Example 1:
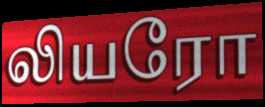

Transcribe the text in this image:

லியரோ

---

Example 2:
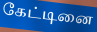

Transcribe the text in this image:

கேட்டினை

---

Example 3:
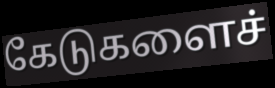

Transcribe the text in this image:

கேடுகளைச்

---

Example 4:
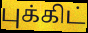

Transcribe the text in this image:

புக்கிட்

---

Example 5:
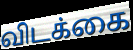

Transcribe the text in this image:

விடக்கை